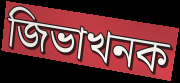
জিভাখনক